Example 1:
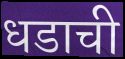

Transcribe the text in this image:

धडाची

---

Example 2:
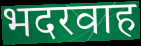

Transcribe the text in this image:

भदरवाह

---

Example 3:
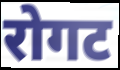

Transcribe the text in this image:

रोगट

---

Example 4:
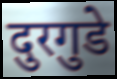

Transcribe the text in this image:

दुरगुडे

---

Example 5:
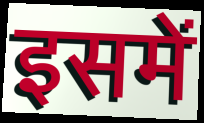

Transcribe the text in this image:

इसमें